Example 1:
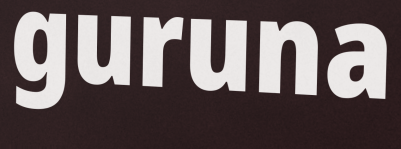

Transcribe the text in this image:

guruna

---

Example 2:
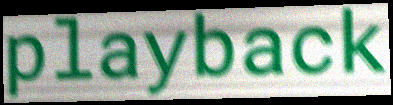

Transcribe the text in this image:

playback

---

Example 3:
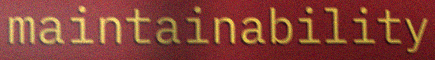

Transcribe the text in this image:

maintainability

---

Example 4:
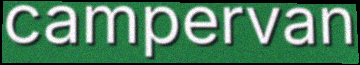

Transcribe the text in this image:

campervan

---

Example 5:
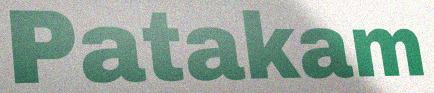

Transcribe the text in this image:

Patakam